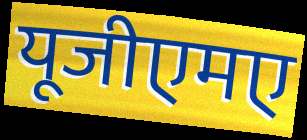
यूजीएमए